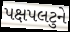
પક્ષપલટુને